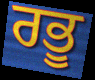
ਰਭੂ